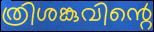
ത്രിശങ്കുവിന്റെ